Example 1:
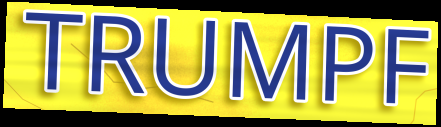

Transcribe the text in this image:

TRUMPF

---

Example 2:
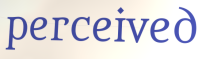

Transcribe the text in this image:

perceived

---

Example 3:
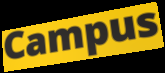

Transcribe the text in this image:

Campus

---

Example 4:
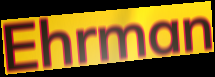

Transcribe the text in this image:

Ehrman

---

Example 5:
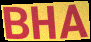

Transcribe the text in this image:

BHA